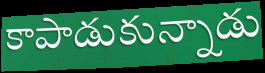
కాపాడుకున్నాడు